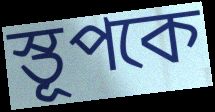
স্তূপকে